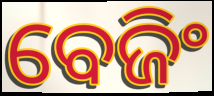
ବେଜିଂ